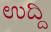
ಉದ್ದಿ